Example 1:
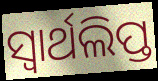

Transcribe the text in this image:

ସ୍ୱାର୍ଥଲିପ୍ତ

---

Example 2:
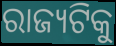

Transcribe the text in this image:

ରାଜ୍ୟଟିକୁ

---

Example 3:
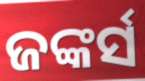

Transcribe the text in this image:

ଜଙ୍କର୍ସ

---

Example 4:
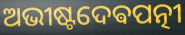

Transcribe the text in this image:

ଅଭୀଷ୍ଟଦେଵପତ୍ନୀ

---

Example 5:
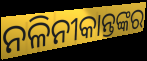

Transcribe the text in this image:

ନଳିନୀକାନ୍ତଙ୍କର